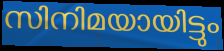
സിനിമയായിട്ടും